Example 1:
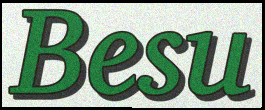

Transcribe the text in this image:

Besu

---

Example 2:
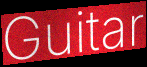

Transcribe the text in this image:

Guitar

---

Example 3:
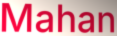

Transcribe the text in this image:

Mahan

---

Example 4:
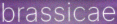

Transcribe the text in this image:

brassicae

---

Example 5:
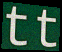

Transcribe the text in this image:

tt